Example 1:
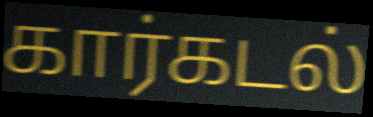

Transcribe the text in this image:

கார்கடல்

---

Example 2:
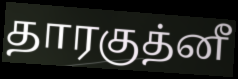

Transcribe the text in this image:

தாரகுத்னீ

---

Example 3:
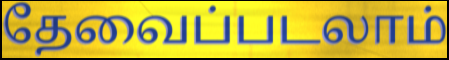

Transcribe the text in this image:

தேவைப்படலாம்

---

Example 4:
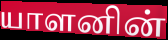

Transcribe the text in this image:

யாளனின்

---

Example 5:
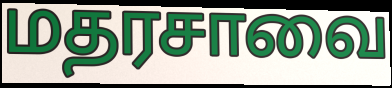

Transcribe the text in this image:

மதரசாவை